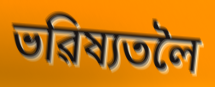
ভৱিষ্যতলৈ